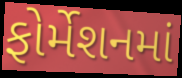
ફોર્મેશનમાં